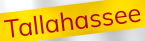
Tallahassee